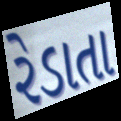
રેડાતા